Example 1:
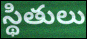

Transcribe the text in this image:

స్థితులు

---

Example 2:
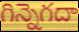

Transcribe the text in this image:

గిన్నెగదా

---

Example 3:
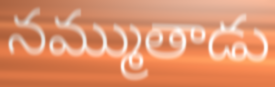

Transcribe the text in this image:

నమ్ముతాడు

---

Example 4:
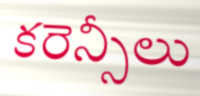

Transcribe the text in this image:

కరెన్సీలు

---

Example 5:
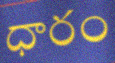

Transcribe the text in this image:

ధారం